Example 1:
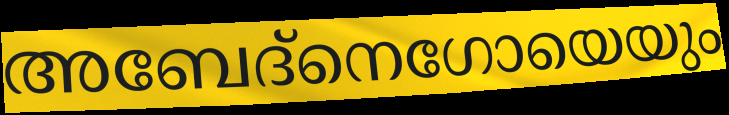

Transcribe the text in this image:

അബേദ്നെഗോയെയും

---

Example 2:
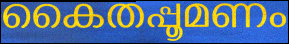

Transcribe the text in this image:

കൈതപ്പൂമണം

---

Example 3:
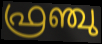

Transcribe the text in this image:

ഫ്രഞ്ചു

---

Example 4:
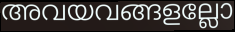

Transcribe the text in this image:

അവയവങ്ങളല്ലോ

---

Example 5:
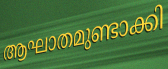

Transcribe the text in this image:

ആഘാതമുണ്ടാക്കി